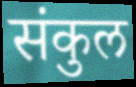
संकुल